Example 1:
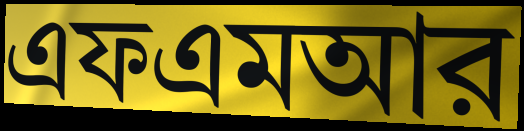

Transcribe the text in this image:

এফএমআর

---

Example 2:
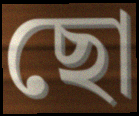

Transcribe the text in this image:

ছো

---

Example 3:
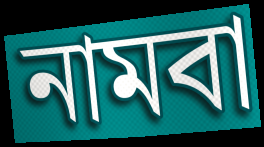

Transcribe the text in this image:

নামবা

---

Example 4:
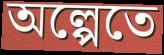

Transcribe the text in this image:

অল্পেতে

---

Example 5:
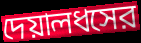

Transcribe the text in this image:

দেয়ালধসের